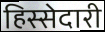
हिस्‍सेदारी